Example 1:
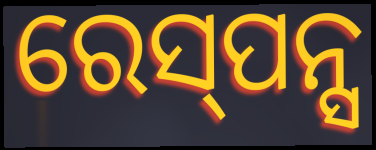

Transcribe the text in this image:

ରେସ୍‌ପନ୍ସ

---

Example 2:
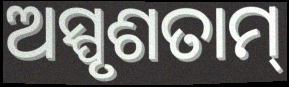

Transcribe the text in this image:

ଅସ୍ପୃଶତାମ୍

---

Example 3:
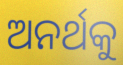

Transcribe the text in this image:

ଅନର୍ଥକୁ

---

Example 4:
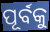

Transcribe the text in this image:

ପୂର୍ବକୁ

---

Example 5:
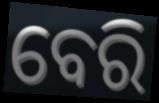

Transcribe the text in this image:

ବେରି